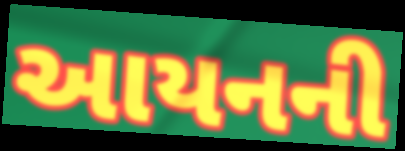
આયનની